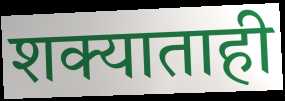
शक्याताही